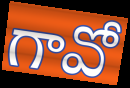
గావో